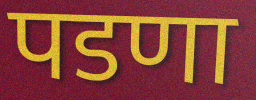
पडणा